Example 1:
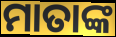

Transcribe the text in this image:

ମାତାଙ୍କ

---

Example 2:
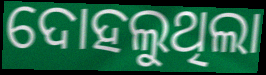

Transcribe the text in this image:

ଦୋହଲୁଥିଲା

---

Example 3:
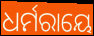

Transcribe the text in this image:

ଧର୍ମରାୟେ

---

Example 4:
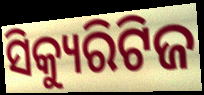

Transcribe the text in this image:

ସିକ୍ୟୁରିଟିଜ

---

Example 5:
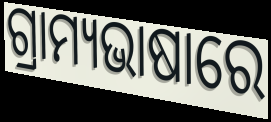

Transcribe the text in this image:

ଗ୍ରାମ୍ୟଭାଷାରେ